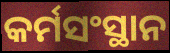
କର୍ମସଂସ୍ଥାନ